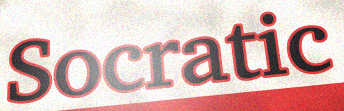
Socratic